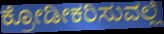
ಕ್ರೋಡೀಕರಿಸುವಲ್ಲಿ